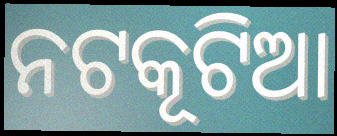
ନଟକୂଟିଆ